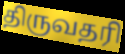
திருவதரி